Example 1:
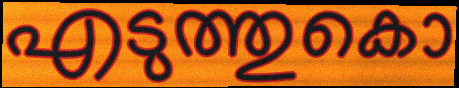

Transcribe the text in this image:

എടുത്തുകൊ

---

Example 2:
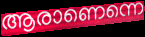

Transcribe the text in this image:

ആരാണെന്നെ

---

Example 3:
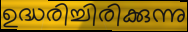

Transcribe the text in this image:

ഉദ്ധരിച്ചിരിക്കുന്നു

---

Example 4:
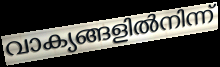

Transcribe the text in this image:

വാക്യങ്ങളിൽനിന്ന്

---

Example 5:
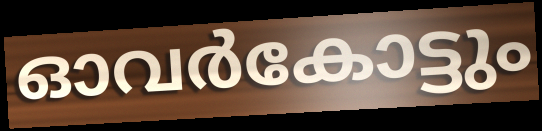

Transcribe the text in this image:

ഓവർകോട്ടും